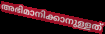
അഭിമാനിക്കാനുള്ളത്